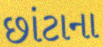
છાંટાના